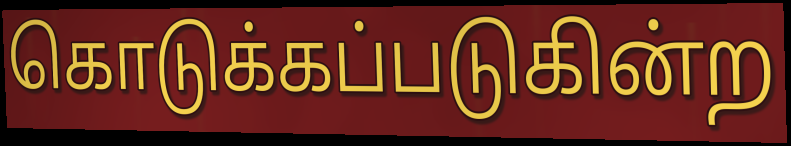
கொடுக்கப்படுகின்ற